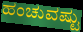
ಹಂಚುವಷ್ಟು